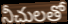
నీచులతో